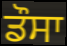
ਡੌਸਾ